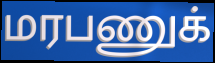
மரபணுக்